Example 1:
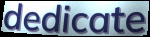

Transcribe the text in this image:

dedicate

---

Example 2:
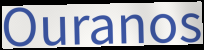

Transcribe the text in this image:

Ouranos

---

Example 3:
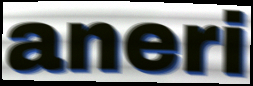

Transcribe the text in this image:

aneri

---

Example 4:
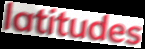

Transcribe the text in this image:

latitudes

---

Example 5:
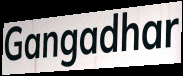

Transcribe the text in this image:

Gangadhar